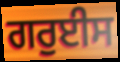
ਗਰੁਈਸ